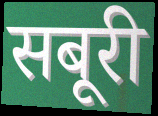
सबूरी